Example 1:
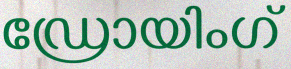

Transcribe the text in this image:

ഡ്രോയിംഗ്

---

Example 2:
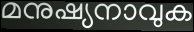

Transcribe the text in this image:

മനുഷ്യനാവുക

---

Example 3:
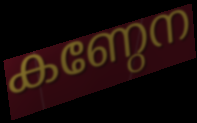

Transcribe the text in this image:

കണ്ഠേന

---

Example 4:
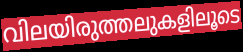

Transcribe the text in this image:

വിലയിരുത്തലുകളിലൂടെ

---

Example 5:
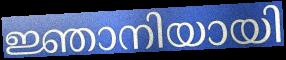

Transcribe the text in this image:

ജ്ഞാനിയായി